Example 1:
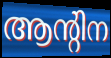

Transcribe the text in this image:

ആന്റിന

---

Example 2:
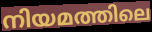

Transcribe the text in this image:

നിയമത്തിലെ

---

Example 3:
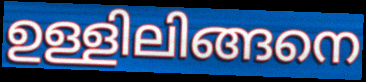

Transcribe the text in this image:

ഉള്ളിലിങ്ങനെ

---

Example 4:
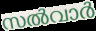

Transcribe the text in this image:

സൽവാർ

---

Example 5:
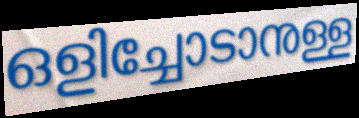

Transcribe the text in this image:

ഒളിച്ചോടാനുള്ള